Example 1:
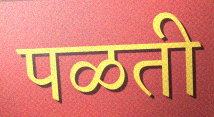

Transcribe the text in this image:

पळती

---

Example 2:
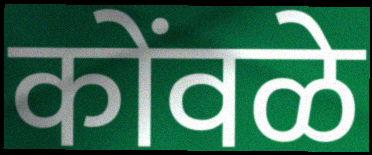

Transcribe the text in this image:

कोंवळे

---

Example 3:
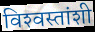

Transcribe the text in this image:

विश्वस्तांशी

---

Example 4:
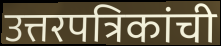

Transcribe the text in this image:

उत्तरपत्रिकांची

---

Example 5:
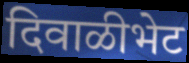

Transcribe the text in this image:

दिवाळीभेट